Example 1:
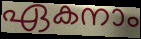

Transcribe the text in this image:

ഏകനാം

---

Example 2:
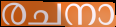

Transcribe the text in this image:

രചനാ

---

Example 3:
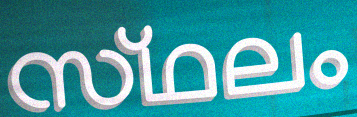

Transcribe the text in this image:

സ്‌ഥലം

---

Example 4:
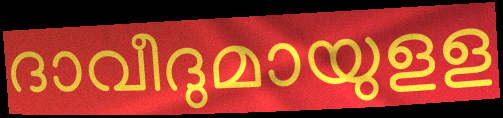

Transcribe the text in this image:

ദാവീദുമായുളള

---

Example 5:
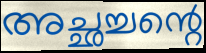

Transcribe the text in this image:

അച്ഛച്ചന്റെ